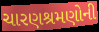
ચારણશ્રમણોની